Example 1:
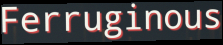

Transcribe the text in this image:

Ferruginous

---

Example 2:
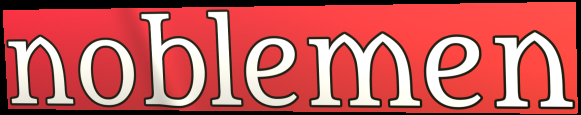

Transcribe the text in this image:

noblemen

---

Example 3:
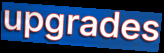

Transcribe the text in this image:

upgrades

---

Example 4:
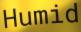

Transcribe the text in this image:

Humid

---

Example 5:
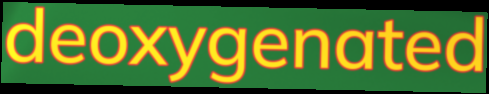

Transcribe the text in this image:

deoxygenated